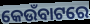
କେଉଁବାଟରେ